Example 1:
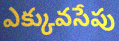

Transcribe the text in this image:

ఎక్కువసేపు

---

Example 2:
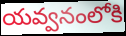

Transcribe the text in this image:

యవ్వనంలోకి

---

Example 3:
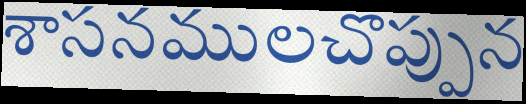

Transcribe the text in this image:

శాసనములచొప్పున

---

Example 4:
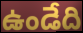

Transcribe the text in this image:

ఉండేది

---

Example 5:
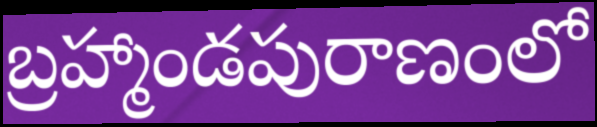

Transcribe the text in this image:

బ్రహ్మాండపురాణంలో